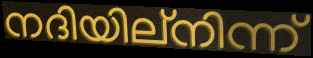
നദിയില്നിന്ന്